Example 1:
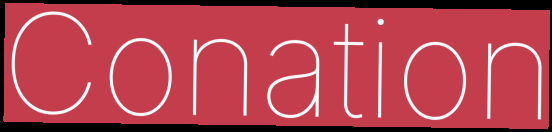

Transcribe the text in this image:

Conation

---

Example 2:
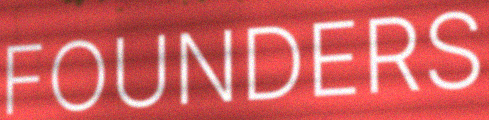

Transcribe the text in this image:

FOUNDERS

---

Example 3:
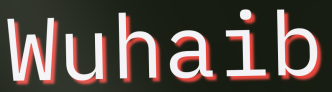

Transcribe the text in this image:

Wuhaib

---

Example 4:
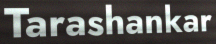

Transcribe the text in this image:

Tarashankar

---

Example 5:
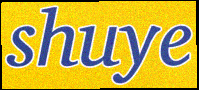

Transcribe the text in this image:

shuye